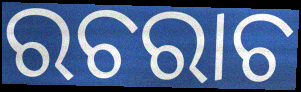
ରଚରାଚ